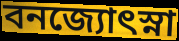
বনজ্যোৎস্না